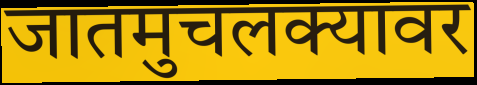
जातमुचलक्यावर